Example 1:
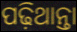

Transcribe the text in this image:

ପଢ଼ିଥାନ୍ତା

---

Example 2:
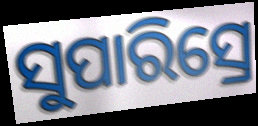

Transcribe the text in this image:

ସୁପାରିସ୍ରେ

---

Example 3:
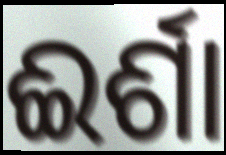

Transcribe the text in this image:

ଈର୍ଶା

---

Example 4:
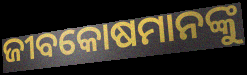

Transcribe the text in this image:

ଜୀବକୋଷମାନଙ୍କୁ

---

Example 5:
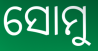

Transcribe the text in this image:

ସୋମୁ